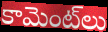
కామెంట్‌లు